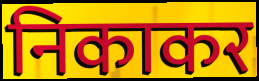
निकाकर